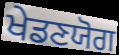
ਖੇਡਣਯੋਗ